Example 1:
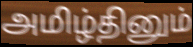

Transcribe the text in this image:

அமிழ்தினும்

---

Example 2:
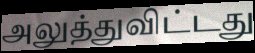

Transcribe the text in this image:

அலுத்துவிட்டது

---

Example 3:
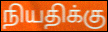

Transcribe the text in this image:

நியதிக்கு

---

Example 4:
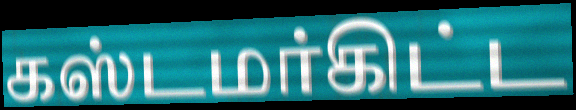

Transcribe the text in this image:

கஸ்டமர்கிட்ட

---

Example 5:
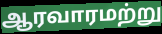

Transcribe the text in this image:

ஆரவாரமற்று